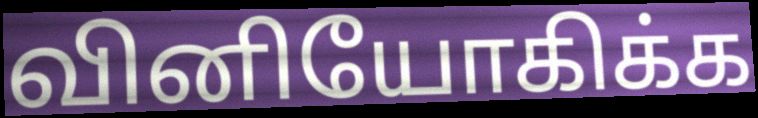
வினியோகிக்க